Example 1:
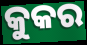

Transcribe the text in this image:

କୁକର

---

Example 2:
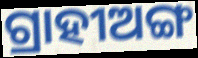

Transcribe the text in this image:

ଗ୍ରାହୀଅଙ୍ଗ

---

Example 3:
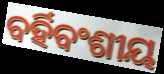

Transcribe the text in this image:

ବର୍ହିବଂଶୀୟ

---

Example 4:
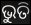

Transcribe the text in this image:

ଭୁତି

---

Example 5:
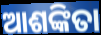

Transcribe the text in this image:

ଆଶଙ୍କିତା